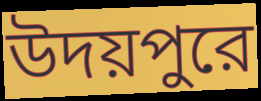
উদয়পুরে